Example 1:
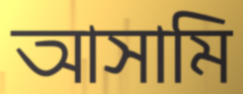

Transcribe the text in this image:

আসামি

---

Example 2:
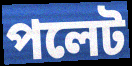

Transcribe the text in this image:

পলেট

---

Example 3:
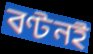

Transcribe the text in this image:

বণ্টনই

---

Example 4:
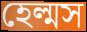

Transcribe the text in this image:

হেল্মস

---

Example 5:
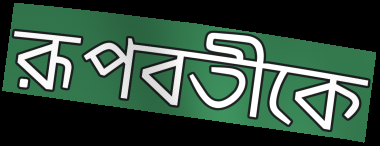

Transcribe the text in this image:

রূপবতীকে